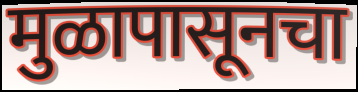
मुळापासूनचा